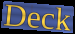
Deck